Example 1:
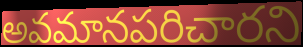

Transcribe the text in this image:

అవమానపరిచారని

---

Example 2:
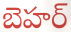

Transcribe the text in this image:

బెహర్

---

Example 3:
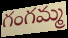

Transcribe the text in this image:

గంగమ్మ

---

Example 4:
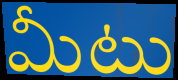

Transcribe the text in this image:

మీటు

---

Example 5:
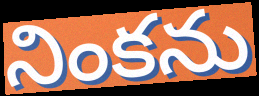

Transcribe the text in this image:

నింకను